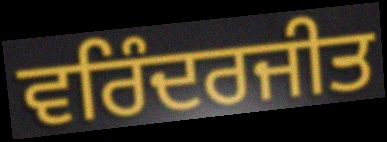
ਵਰਿੰਦਰਜੀਤ